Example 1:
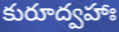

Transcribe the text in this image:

కురూద్వహాః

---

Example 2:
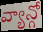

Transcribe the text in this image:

వ్యాన్గో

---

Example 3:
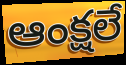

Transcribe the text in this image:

ఆంక్షలే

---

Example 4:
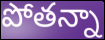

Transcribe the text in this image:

పోతన్నా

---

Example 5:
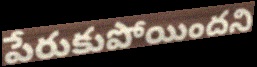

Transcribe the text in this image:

పేరుకుపోయిందని